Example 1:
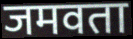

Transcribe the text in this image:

जमवता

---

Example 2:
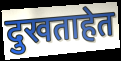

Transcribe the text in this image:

दुखताहेत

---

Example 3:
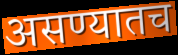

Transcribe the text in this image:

असण्यातच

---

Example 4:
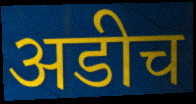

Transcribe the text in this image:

अडीच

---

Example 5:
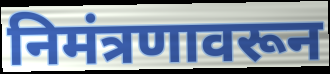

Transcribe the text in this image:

निमंत्रणावरून